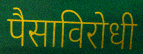
पैसाविरोधी